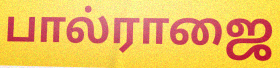
பால்ராஜை